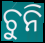
ଚୁନି